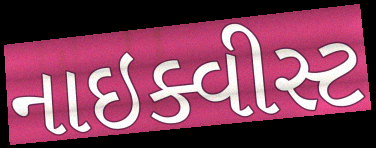
નાઇક્વીસ્ટ